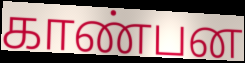
காண்பன